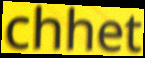
chhet